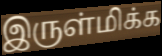
இருள்மிக்க